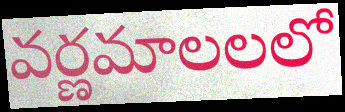
వర్ణమాలలలో